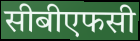
सीबीएफसी